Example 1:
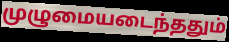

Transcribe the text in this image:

முழுமையடைந்ததும்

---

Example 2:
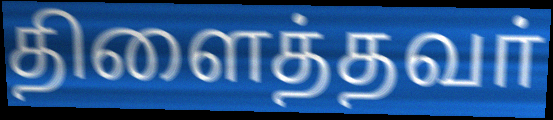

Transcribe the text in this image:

திளைத்தவர்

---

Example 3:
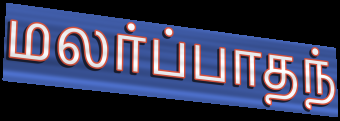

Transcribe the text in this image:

மலர்ப்பாதந்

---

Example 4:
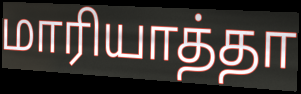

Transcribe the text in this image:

மாரியாத்தா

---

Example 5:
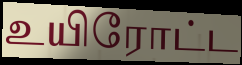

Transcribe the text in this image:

உயிரோட்ட